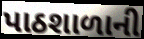
પાઠશાળાની